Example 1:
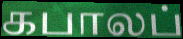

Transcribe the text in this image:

கபாலப்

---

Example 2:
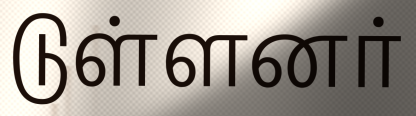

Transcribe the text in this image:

டுள்ளனர்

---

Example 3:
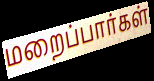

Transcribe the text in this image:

மறைப்பார்கள்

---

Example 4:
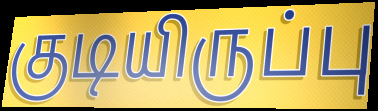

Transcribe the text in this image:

குடியிருப்பு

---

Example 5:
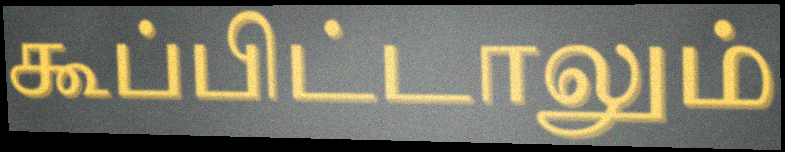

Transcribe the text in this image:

கூப்பிட்டாலும்